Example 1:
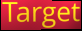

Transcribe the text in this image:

Target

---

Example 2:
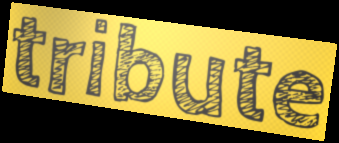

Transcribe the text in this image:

tribute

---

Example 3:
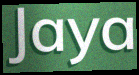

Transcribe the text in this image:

Jaya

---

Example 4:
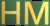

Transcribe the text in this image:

HM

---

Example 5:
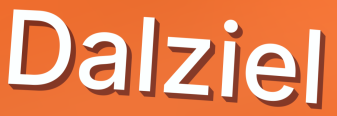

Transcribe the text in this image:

Dalziel